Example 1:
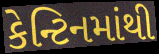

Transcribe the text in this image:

કેન્ટિનમાંથી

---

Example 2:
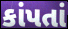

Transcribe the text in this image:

કાંપતાં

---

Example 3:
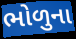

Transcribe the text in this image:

ભોળુના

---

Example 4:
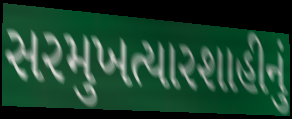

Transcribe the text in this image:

સરમુખત્યારશાહીનું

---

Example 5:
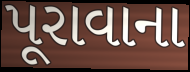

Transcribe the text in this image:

પૂરાવાના